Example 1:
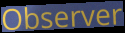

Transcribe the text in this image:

Observer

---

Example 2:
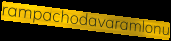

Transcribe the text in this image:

rampachodavaramlonu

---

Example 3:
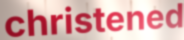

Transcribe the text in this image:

christened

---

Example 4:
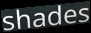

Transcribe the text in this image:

shades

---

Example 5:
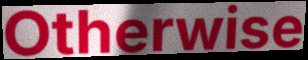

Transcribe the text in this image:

Otherwise